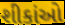
શીકાંઓ